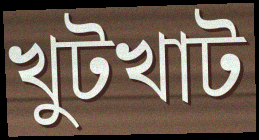
খুটখাট